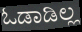
ಓಡಾಡಿಲ್ಲ